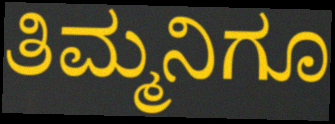
ತಿಮ್ಮನಿಗೂ